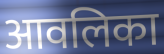
आवलिका